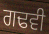
ਗਢਵੀ